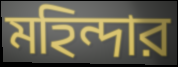
মহিন্দার